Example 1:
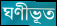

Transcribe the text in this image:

ঘণীভূত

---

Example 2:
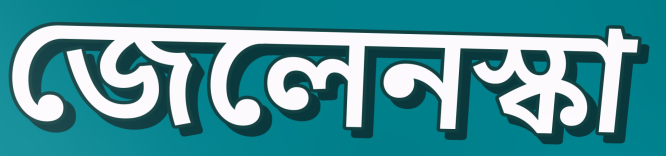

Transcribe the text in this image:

জেলেনস্কা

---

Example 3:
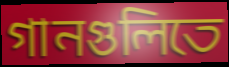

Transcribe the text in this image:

গানগুলিতে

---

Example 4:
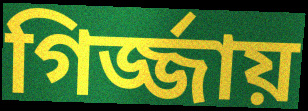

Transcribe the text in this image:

গির্জ্জায়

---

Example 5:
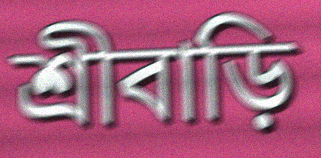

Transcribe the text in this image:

শ্রীবাড়ি